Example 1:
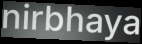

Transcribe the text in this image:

nirbhaya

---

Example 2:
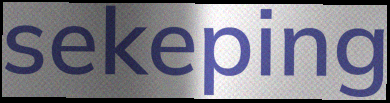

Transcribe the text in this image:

sekeping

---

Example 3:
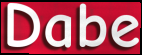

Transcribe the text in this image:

Dabe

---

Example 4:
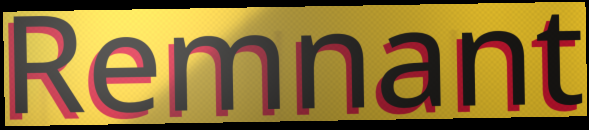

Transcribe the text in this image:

Remnant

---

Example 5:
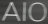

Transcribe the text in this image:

AIO